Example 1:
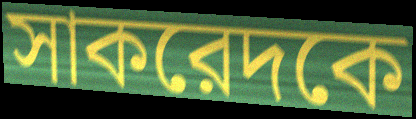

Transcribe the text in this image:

সাকরেদকে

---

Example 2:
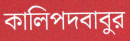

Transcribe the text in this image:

কালিপদবাবুর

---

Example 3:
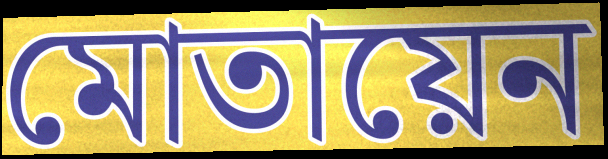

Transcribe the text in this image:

মোতায়েন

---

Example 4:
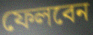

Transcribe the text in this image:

ফেলবেন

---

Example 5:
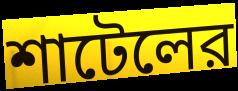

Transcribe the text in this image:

শাটেলের